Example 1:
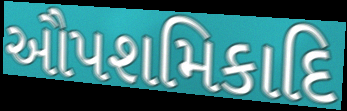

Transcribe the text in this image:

ઔપશમિકાદિ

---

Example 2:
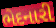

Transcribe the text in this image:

ભેદનારી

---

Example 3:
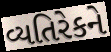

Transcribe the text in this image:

વ્યતિરેકને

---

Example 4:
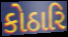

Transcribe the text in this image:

કોઠારિ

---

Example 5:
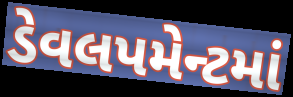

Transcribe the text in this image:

ડેવલપમેન્ટમાં